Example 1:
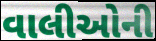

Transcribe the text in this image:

વાલીઓની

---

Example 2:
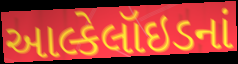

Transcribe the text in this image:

આલ્કેલૉઇડનાં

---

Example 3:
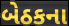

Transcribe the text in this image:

બેઠકના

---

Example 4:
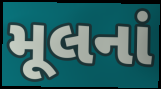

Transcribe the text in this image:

મૂલનાં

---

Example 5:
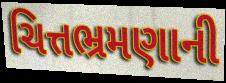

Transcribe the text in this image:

ચિત્તભ્રમણાની